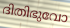
ദിതിഭുവോ